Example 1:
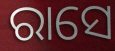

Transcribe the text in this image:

ରାସେ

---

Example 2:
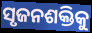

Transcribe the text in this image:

ସୃଜନଶକ୍ତିକୁ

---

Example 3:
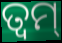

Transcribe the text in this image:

ତ୍ଵମ୍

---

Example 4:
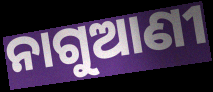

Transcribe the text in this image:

ନାଗୁଆଣୀ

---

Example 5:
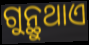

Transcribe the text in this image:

ଗୁନ୍ଥୁଥାଏ